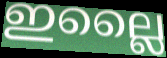
ഇല്ലൈ